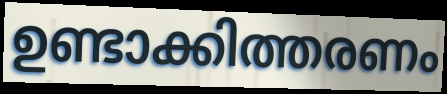
ഉണ്ടാക്കിത്തരണം